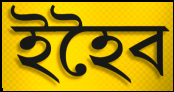
ইহৈব